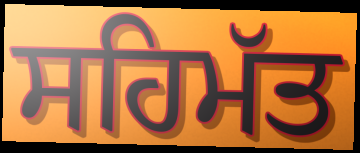
ਸਹਿਮੱਤ